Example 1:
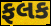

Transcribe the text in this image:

ફલક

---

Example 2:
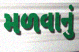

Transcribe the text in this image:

મળવાનું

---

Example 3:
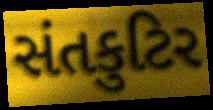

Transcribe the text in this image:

સંતકુટિર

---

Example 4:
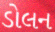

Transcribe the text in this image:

ડોલન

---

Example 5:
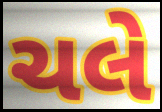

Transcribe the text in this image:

ચલે